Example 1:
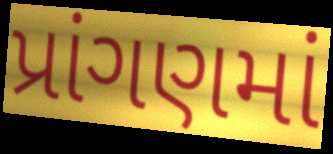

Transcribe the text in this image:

પ્રાંગણમાં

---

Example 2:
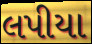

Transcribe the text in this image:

લપીયા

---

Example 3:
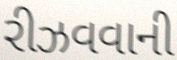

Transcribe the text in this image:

રીઝવવાની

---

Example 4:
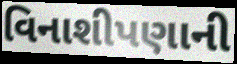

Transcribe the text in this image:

વિનાશીપણાની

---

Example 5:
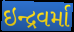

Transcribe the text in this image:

ઇન્દ્રવર્મા